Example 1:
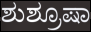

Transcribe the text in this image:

ಶುಶ್ರೂಷಾ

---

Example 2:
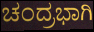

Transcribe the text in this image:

ಚಂದ್ರಭಾಗಿ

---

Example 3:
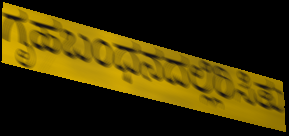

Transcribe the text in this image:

ಗೃಹಬಂಧನದಲ್ಲಿರಿಸಿತು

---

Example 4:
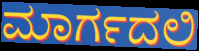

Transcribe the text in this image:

ಮಾರ್ಗದಲಿ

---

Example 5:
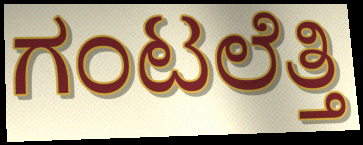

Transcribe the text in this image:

ಗಂಟಲೆತ್ತಿ